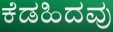
ಕೆಡಹಿದವು